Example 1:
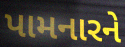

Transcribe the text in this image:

પામનારને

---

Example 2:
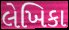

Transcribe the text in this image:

લેખિકા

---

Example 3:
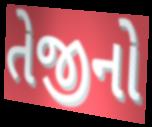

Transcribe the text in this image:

તેજીનો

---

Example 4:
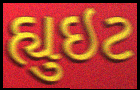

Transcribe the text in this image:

હ્યુઇટ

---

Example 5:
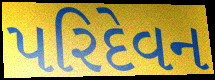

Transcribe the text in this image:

પરિદેવન